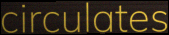
circulates